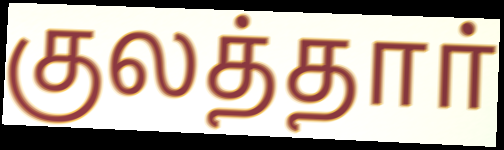
குலத்தார்